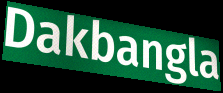
Dakbangla